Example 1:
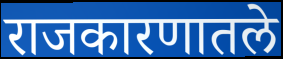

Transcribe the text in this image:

राजकारणातले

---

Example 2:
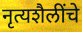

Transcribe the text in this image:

नृत्यशैलींचे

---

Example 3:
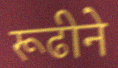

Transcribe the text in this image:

रूढीने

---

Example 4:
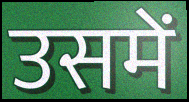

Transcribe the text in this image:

उसमें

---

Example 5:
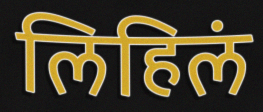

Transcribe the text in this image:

लिहिलं